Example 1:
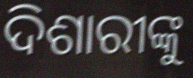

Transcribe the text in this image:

ଦିଶାରୀଙ୍କୁ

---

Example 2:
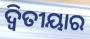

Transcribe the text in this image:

ଦ୍ଵିତୀୟାର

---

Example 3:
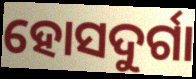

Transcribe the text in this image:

ହୋସଦୁର୍ଗା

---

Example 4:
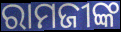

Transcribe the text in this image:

ରାମଜୀଙ୍କ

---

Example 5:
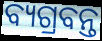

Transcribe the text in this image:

ବ୍ୟଗ୍ରବନ୍ତ